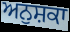
ਅਨੁਸ਼ਕਾ